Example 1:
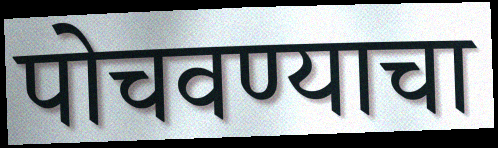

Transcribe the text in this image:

पोचवण्याचा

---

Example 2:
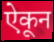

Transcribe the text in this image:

ऐकून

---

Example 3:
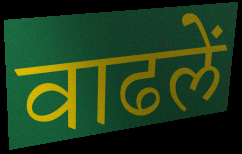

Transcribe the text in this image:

वाढलें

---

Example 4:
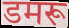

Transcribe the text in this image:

डमरू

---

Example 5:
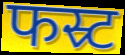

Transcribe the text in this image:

फस्र्ट